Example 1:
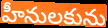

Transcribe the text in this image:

హీనులకును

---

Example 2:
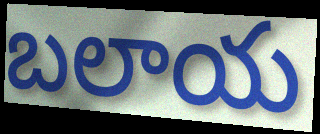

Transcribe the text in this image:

బలాయ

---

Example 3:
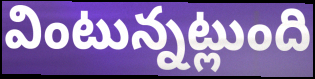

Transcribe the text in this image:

వింటున్నట్లుంది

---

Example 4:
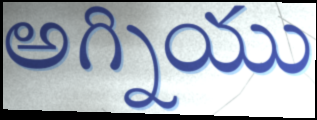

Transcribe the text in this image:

అగ్నియు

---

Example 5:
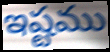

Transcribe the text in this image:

ఇష్టము